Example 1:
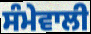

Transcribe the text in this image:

ਸੰਮੇਵਾਲੀ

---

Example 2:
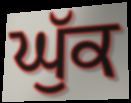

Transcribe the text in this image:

ਘੁੱਕ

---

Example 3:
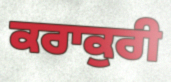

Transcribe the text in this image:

ਕਰਾਕੁਰੀ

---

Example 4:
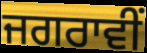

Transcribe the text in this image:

ਜਗਰਾਵੀਂ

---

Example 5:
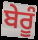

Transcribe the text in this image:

ਬੇਰੂੰ